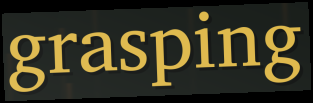
grasping